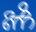
ഷ്ണ